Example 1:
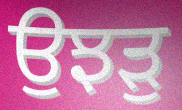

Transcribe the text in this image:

ਉਝੜੁ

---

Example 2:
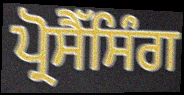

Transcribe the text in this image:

ਪ੍ਰੋਸੈੱਸਿੰਗ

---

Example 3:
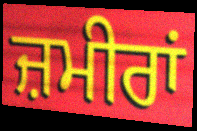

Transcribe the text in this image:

ਜ਼ਮੀਰਾਂ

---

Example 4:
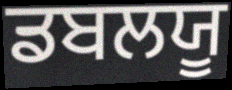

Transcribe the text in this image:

ਡਬਲਯੂ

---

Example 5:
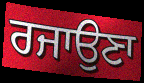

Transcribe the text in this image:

ਰਜਾਉਣਾ